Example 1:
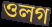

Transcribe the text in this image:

ওলগ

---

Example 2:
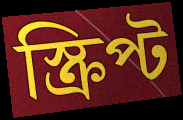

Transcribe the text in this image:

স্ক্ৰিপ্ট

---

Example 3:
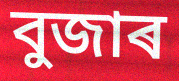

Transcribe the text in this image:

বুজাৰ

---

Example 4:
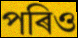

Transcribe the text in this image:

পৰিও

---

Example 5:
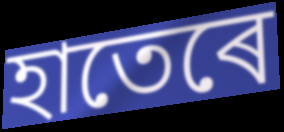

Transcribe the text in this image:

হাতেৰে